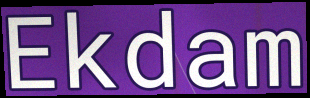
Ekdam